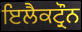
ਇਲੈਕਟ੍ਰੌਨ